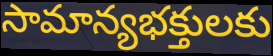
సామాన్యభక్తులకు